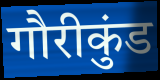
गौरीकुंड